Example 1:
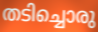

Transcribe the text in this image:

തടിച്ചൊരു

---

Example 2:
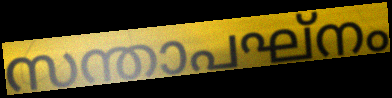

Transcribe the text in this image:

സന്താപഘ്നം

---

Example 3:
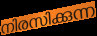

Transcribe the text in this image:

നിരസിക്കുന്ന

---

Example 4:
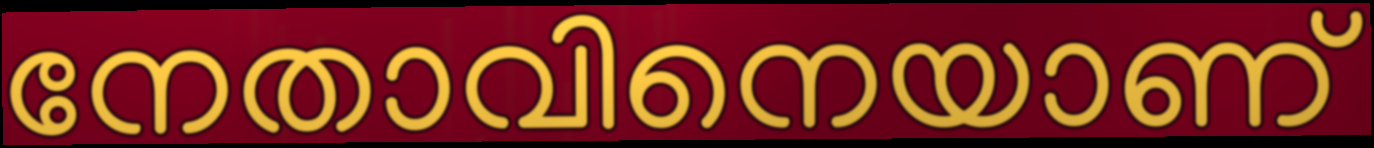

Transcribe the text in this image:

നേതാവിനെയാണ്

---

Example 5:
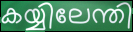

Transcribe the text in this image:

കയ്യിലേന്തി